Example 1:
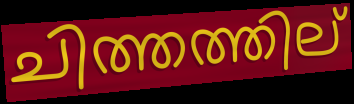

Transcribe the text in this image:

ചിത്തത്തില്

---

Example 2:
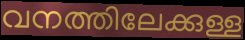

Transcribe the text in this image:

വനത്തിലേക്കുള്ള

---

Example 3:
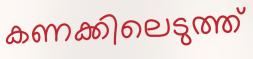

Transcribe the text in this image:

കണക്കിലെടുത്ത്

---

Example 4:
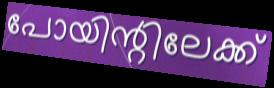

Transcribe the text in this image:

പോയിന്റിലേക്ക്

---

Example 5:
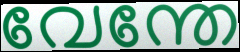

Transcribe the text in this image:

വേന്തേ